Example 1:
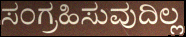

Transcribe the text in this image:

ಸಂಗ್ರಹಿಸುವುದಿಲ್ಲ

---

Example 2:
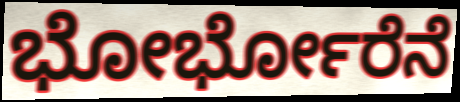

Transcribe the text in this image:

ಭೋರ್ಭೋರೆನೆ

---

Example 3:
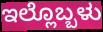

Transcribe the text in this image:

ಇಲ್ಲೊಬ್ಬಳು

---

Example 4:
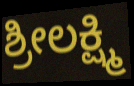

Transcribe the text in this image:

ಶ್ರೀಲಕ್ಷ್ಮಿ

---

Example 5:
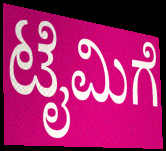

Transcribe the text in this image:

ಟೈಮಿಗೆ